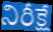
నిరీక్షే